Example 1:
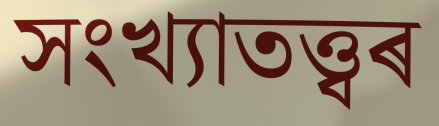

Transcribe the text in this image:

সংখ্যাতত্ত্বৰ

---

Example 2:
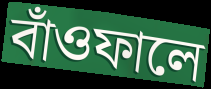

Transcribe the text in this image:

বাঁওফালে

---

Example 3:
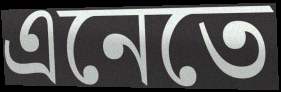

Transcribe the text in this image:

এনেতে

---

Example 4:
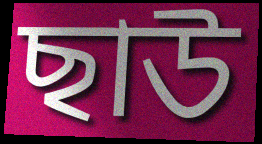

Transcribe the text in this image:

ছাউ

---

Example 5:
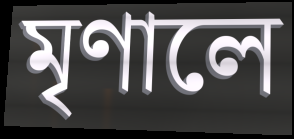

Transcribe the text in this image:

মৃণালে